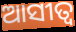
ଆସୀତ୍ବ